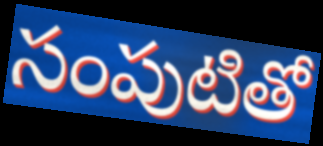
సంపుటితో